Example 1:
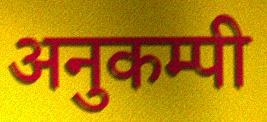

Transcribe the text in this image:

अनुकम्पी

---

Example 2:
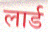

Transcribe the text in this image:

लार्ड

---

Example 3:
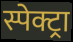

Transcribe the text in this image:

स्पेक्ट्रा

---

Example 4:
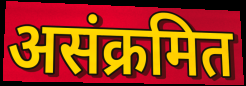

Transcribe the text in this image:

असंक्रमित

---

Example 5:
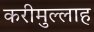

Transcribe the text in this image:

करीमुल्लाह